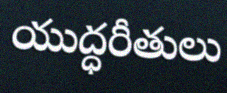
యుద్ధరీతులు